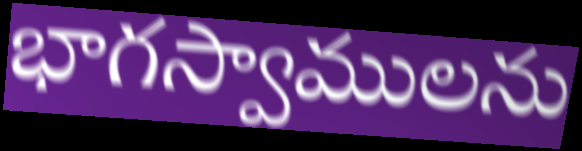
భాగస్వాములను